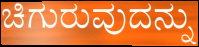
ಚಿಗುರುವುದನ್ನು